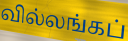
வில்லங்கப்